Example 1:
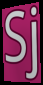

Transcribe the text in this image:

Sj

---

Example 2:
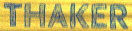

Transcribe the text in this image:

THAKER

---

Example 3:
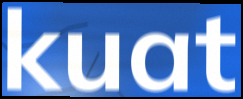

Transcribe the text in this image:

kuat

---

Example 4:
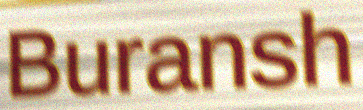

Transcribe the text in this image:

Buransh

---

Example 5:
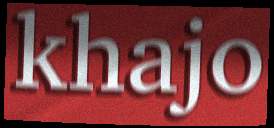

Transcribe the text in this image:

khajo